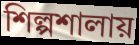
শিল্পশালায়